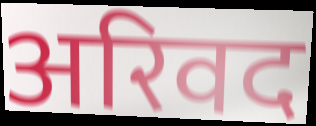
अरिवद